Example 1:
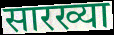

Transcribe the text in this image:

सारख्या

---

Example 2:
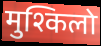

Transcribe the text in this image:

मुश्किलो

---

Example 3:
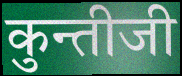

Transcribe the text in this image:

कुन्तीजी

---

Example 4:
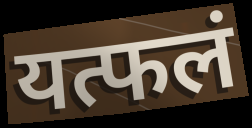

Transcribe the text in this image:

यत्फलं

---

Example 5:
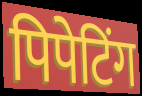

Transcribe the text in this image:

पिपेटिंग